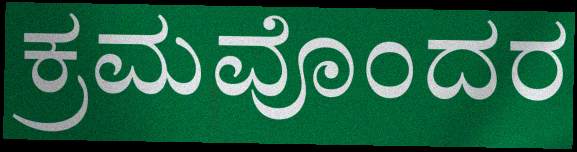
ಕ್ರಮವೊಂದರ